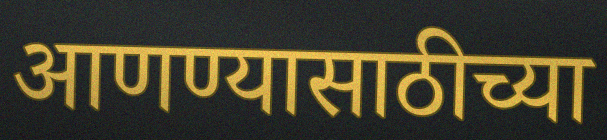
आणण्यासाठीच्या